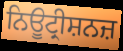
ਨਿਊਟ੍ਰੀਸ਼ਨਜ਼